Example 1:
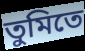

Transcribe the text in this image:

তুমিতে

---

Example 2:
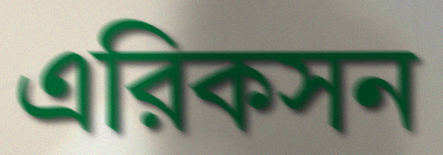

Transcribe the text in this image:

এরিকসন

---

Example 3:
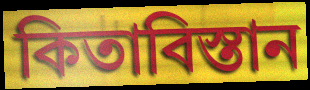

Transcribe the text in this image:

কিতাবিস্তান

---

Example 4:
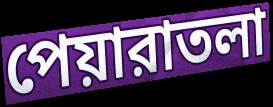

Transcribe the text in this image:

পেয়ারাতলা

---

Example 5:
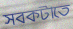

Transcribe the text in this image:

সবকটাতে